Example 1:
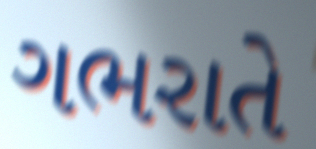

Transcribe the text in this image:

ગભરાતે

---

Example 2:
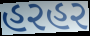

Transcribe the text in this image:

હરહર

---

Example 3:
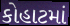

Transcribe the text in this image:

કોહાટમાં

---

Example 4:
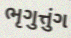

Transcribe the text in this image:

ભૃગુત્તુંગ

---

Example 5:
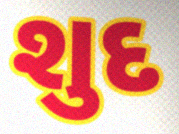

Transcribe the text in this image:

શુદ